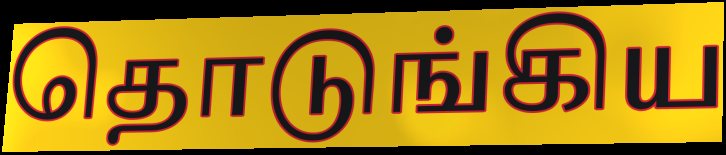
தொடுங்கிய